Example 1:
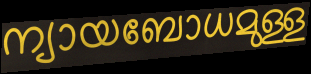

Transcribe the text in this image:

ന്യായബോധമുള്ള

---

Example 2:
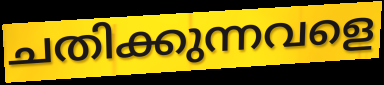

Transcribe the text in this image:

ചതിക്കുന്നവളെ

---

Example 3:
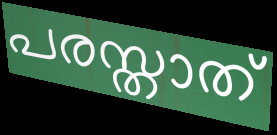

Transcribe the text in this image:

പരസ്താത്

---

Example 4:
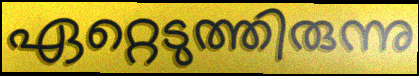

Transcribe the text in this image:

ഏറ്റെടുത്തിരുന്നു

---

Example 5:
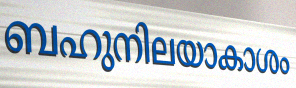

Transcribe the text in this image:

ബഹുനിലയാകാശം